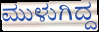
ಮುಳುಗಿದ್ದ